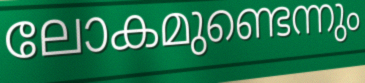
ലോകമുണ്ടെന്നും